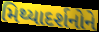
મિથ્યાદર્શનોને